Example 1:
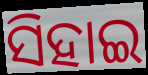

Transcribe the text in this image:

ସିହାଇ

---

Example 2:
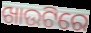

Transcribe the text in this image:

ଖାଉଟିରେ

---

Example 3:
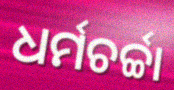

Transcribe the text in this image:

ଧର୍ମଚର୍ଚ୍ଚା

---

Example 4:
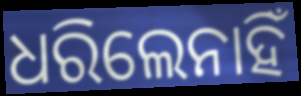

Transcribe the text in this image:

ଧରିଲେନାହିଁ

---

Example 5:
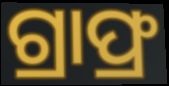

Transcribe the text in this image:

ଗ୍ରାଫ୍ର